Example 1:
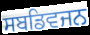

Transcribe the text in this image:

ਸਬਡਿਵਜਨ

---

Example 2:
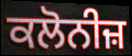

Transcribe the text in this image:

ਕਲੋਨੀਜ਼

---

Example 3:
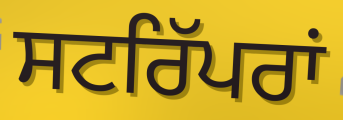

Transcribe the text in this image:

ਸਟਰਿੱਪਰਾਂ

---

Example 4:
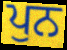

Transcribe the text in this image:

ਪੁਨ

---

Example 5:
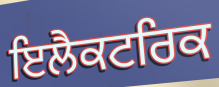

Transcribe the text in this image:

ਇਲੈਕਟਰਿਕ